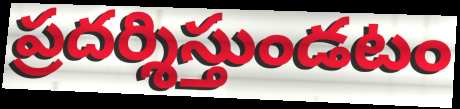
ప్రదర్శిస్తుండటం